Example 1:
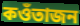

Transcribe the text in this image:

কওঁতাজন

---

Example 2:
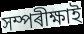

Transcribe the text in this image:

সম্পৰীক্ষাই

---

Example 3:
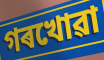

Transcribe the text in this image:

গৰখোৱা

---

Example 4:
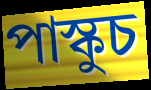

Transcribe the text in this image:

পাস্কুচ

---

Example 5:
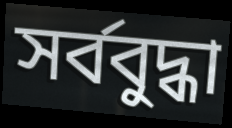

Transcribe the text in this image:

সৰ্ববুদ্ধা